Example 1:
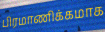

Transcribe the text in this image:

பிரமாணிக்கமாக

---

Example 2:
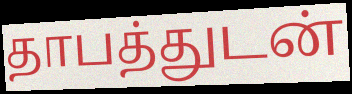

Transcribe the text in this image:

தாபத்துடன்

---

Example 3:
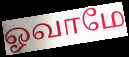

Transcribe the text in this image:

ஓவாமே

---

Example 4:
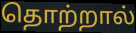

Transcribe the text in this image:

தொற்றால்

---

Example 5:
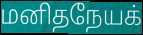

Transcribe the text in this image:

மனிதநேயக்